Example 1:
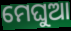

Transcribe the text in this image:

ମେଘୁଆ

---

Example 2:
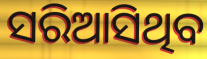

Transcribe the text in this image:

ସରିଆସିଥିବ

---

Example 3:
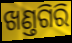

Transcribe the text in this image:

ଖଣ୍ତଗିରି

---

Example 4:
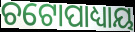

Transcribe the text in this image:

ଚଟୋପାଧ୍ୟାୟ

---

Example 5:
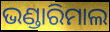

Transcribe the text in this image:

ଭଣ୍ଡାରିମାଲ